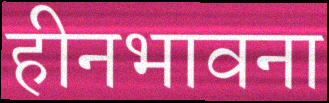
हीनभावना